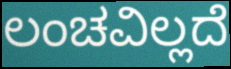
ಲಂಚವಿಲ್ಲದೆ